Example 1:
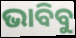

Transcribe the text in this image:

ଭାବିବୁ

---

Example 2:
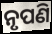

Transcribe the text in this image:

ନୃପଣି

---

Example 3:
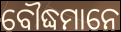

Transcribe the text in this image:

ବୌଦ୍ଧମାନେ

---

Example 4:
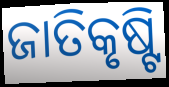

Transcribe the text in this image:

ଜାତିକୃଷ୍ଟି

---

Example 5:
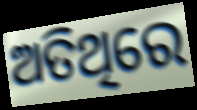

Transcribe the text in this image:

ଅତିଥିରେ